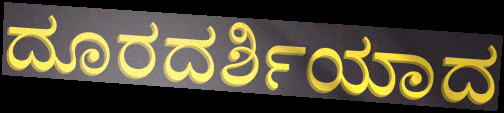
ದೂರದರ್ಶಿಯಾದ